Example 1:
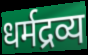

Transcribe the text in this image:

धर्मद्रव्य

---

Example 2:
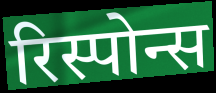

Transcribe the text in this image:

रिस्पोन्स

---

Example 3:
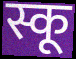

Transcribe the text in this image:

स्कू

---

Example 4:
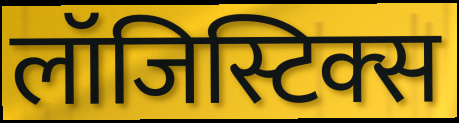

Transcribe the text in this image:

लॉजिस्टिक्‍स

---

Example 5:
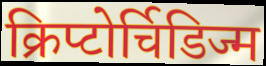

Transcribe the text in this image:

क्रिप्टोर्चिडिज्म